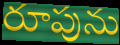
రూపును